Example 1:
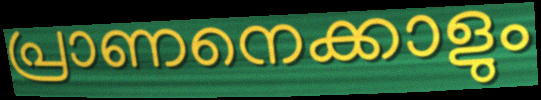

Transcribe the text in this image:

പ്രാണനെക്കാളും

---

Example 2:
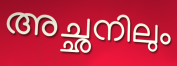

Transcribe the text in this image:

അച്ഛനിലും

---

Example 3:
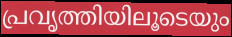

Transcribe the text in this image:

പ്രവൃത്തിയിലൂടെയും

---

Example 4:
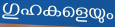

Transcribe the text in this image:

ഗുഹകളെയും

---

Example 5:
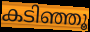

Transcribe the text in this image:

കടിഞ്ഞൂ